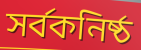
সর্বকনিষ্ঠ